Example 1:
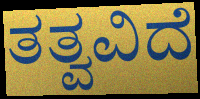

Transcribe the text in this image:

ತತ್ವವಿದೆ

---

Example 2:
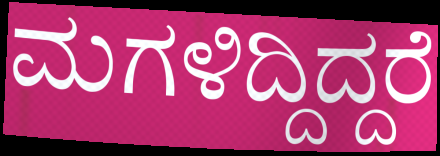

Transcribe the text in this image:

ಮಗಳಿದ್ದಿದ್ದರೆ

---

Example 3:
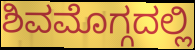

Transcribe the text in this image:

ಶಿವಮೊಗ್ಗದಲ್ಲಿ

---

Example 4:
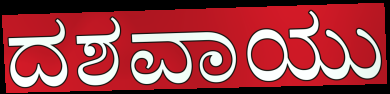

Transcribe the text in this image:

ದಶವಾಯು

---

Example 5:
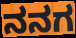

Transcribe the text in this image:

ನನಗ